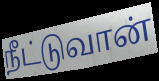
நீட்டுவான்